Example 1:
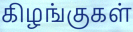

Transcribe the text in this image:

கிழங்குகள்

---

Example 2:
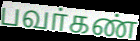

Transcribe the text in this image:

பவர்கண்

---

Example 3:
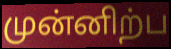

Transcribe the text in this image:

முன்னிற்ப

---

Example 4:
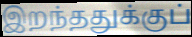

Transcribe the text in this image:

இறந்ததுக்குப்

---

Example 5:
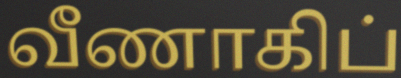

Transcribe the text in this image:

வீணாகிப்